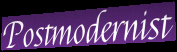
Postmodernist